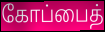
கோப்பைத்